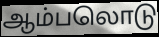
ஆம்பலொடு